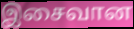
இசைவான